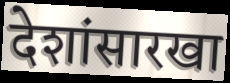
देशांसारखा